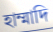
হাম্মাদি